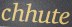
chhute